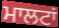
ਮਾਲਟਾਂ